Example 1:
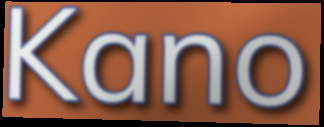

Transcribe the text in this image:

Kano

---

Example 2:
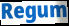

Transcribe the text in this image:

Regum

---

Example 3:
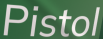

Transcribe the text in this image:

Pistol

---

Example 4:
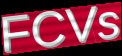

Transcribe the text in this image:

FCVs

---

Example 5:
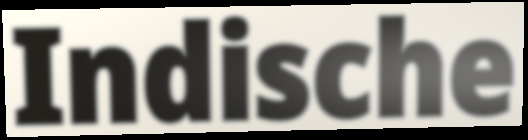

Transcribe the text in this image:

Indische